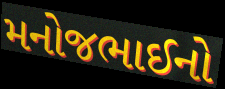
મનોજભાઈનો